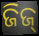
ଜିଜ୍